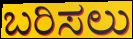
ಬರಿಸಲು